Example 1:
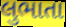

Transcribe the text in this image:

લુભાતા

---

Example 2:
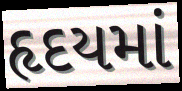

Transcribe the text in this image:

હૃદયમાં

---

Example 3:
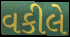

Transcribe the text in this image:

વકીલે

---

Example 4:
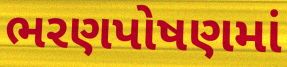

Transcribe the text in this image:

ભરણપોષણમાં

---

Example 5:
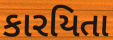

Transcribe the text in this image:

કારયિતા